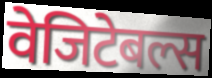
वेजिटेबल्स